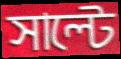
সাল্টে